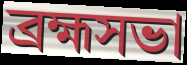
ব্রহ্মসভা